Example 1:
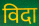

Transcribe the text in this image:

विदा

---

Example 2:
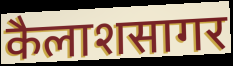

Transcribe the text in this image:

कैलाशसागर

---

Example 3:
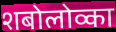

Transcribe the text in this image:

शबोलोव्का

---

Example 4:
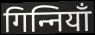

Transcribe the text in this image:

गिन्नियाँ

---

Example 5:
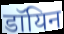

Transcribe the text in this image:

डॉयिन